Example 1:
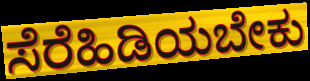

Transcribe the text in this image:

ಸೆರೆಹಿಡಿಯಬೇಕು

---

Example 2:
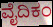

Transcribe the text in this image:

ವೈದಿಕಂ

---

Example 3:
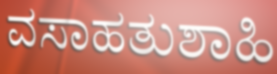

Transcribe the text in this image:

ವಸಾಹತುಶಾಹಿ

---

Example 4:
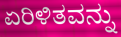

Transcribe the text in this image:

ಏರಿಳಿತವನ್ನು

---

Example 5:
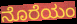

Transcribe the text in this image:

ನೊರೆಯಂ